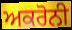
ਅਕਰੋਨੀ